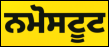
ਨਮੋਸਟੂਟ